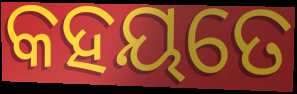
କହୟତେ